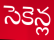
సెకెన్ల